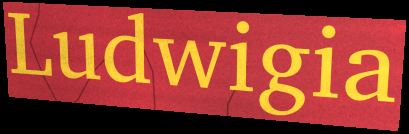
Ludwigia